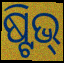
ଷ୍ଟିଭ୍